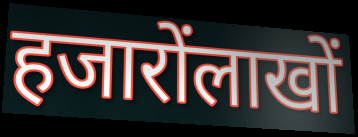
हजारोंलाखों